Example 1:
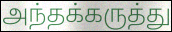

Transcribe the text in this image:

அந்தக்கருத்து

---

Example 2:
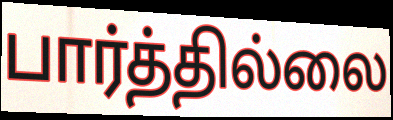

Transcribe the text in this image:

பார்த்தில்லை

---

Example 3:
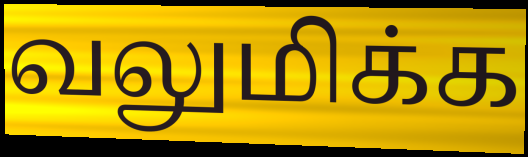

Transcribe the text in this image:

வலுமிக்க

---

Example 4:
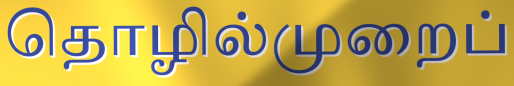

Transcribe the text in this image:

தொழில்முறைப்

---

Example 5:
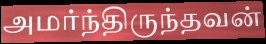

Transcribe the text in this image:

அமர்ந்திருந்தவன்